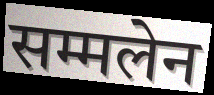
सम्मलेन